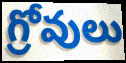
గ్రోవులు